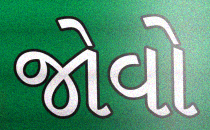
જોવો